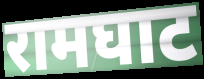
रामघाट